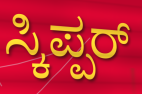
ಸ್ಕಿಪ್ಪರ್